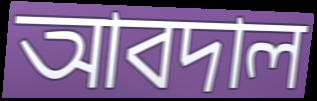
আবদাল